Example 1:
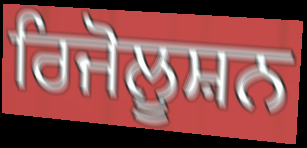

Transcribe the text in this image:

ਰਿਜੋਲੂਸ਼ਨ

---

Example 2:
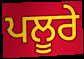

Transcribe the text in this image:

ਪਲੂਰੇ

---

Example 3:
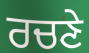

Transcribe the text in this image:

ਰਚਣੇ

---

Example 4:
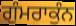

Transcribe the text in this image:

ਗੁੰਮਰਾਕੁੰਨ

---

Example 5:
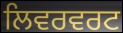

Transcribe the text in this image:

ਲਿਵਰਵਰਟ